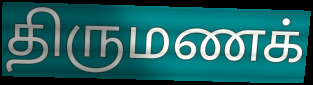
திருமணக்